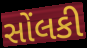
સોંલકી